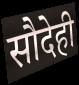
सौदेही